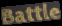
Battle